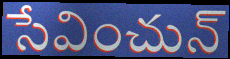
సేవించున్